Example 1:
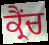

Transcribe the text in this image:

ਕ੍ਰੈਂਚ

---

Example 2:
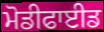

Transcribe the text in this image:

ਮੋਡੀਫਾਈਡ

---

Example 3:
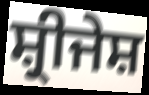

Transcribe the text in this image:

ਸ਼੍ਰੀਜੇਸ਼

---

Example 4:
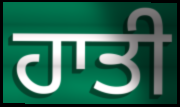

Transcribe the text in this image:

ਹਾਤੀ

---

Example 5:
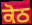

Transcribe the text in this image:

ਕੋਠ